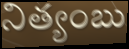
నిత్యంబు